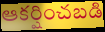
ఆకర్షించబడి